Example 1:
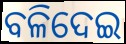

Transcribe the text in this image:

ବଳିଦେଇ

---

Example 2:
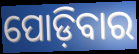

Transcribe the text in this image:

ପୋଡ଼ିବାର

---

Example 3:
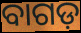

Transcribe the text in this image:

ବାଗଡ଼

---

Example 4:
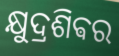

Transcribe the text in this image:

କ୍ଷୁଦ୍ରଶିଵର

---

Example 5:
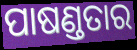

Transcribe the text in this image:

ପାଷଣ୍ଡତାର